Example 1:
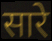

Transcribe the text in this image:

सारे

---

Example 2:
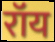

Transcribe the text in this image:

रॉय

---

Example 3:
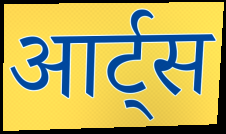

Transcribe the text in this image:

आर्ट्स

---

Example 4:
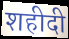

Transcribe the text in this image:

शहीदी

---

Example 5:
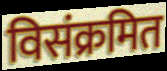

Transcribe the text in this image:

विसंक्रमित